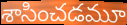
శాసించడమూ